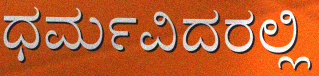
ಧರ್ಮವಿದರಲ್ಲಿ